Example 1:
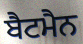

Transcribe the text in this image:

ਬੈਟਮੈਨ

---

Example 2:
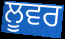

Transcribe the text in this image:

ਲੂਵਰ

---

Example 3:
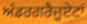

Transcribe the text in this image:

ਅੰਡਰਗਰੈਜੂਏਟਾਂ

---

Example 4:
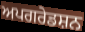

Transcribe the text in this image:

ਅਪਗਰੇਡਸ਼ਨ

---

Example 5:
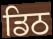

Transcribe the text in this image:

ਡਿਠ